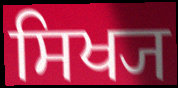
ਸਿਖ੍ਯ